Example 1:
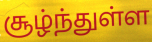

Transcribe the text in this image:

சூழ்ந்துள்ள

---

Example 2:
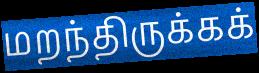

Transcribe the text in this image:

மறந்திருக்கக்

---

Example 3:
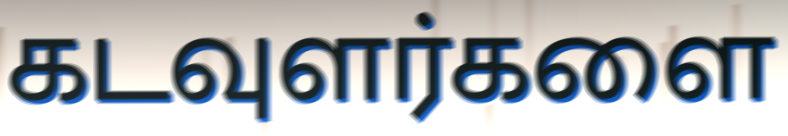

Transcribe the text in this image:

கடவுளர்களை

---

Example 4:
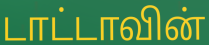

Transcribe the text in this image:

டாட்டாவின்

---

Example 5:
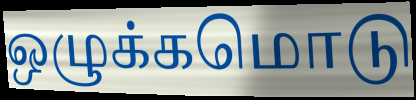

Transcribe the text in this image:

ஒழுக்கமொடு